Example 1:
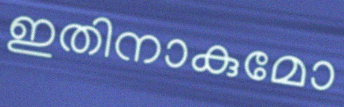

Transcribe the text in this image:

ഇതിനാകുമോ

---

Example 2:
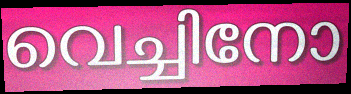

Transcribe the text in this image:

വെച്ചിനോ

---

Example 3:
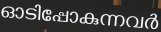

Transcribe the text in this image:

ഓടിപ്പോകുന്നവർ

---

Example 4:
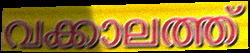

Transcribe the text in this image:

വക്കാലത്ത്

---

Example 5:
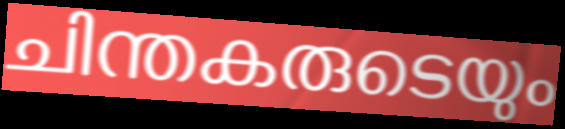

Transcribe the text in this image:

ചിന്തകരുടെയും